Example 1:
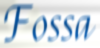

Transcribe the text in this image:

Fossa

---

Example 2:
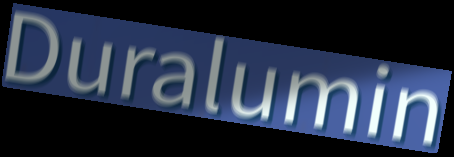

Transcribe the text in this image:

Duralumin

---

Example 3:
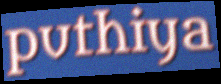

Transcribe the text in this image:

puthiya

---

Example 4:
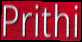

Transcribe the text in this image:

Prithi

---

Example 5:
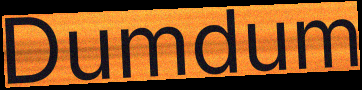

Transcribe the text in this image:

Dumdum